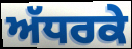
ਅੱਧਰਕੇ